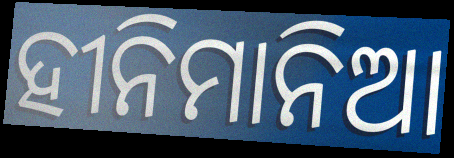
ହୀନିମାନିଆ